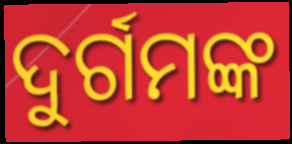
ଦୁର୍ଗମଙ୍କ